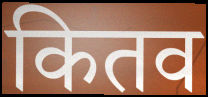
कितव